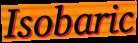
Isobaric